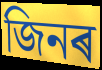
জিনৰ